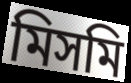
মিসমি